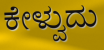
ಕೇಳ್ವುದು